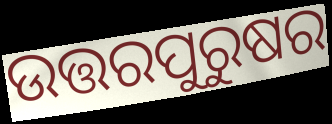
ଉତ୍ତରପୁରୁଷର